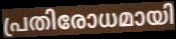
പ്രതിരോധമായി